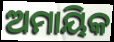
ଅମାୟିକ